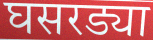
घसरड्या